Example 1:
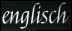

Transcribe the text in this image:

englisch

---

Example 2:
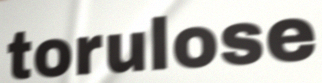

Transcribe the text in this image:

torulose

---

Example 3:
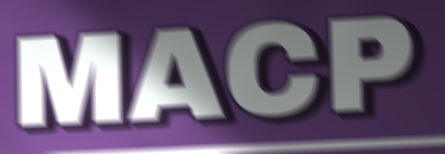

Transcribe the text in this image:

MACP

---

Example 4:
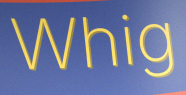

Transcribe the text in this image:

Whig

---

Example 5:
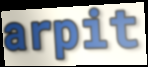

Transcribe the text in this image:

arpit